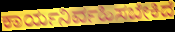
ಕಾರ್ಯನಿರ್ವಹಿಸಬೇಕಿದೆ